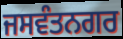
ਜਸਵੰਤਨਗਰ